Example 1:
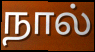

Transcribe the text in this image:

நால்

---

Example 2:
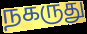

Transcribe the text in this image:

நகருது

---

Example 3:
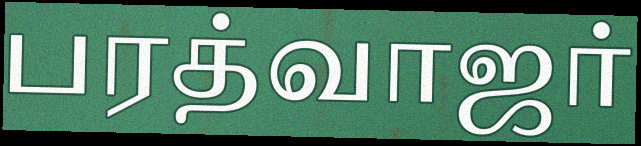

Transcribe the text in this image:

பரத்வாஜர்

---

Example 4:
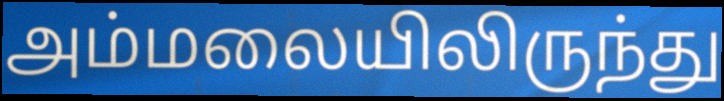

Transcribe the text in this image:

அம்மலையிலிருந்து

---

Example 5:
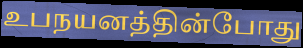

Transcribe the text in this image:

உபநயனத்தின்போது